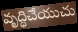
వృద్ధిచేయుచు